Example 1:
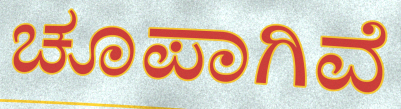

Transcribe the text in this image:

ಚೂಪಾಗಿವೆ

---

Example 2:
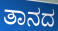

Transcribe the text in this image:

ತಾನದ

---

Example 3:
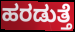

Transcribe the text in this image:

ಹರಡುತ್ತೆ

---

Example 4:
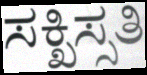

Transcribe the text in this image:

ಸಕ್ಖಿಸ್ಸತಿ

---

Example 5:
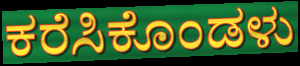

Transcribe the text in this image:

ಕರೆಸಿಕೊಂಡಳು